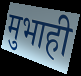
मुभाही